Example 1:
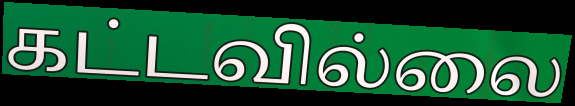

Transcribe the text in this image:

கட்டவில்லை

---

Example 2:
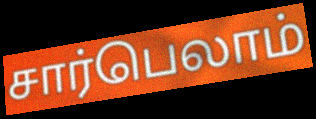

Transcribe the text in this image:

சார்பெலாம்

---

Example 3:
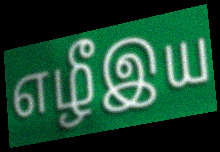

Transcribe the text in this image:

எழீஇய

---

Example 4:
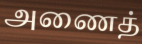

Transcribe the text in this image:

அணைத்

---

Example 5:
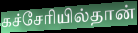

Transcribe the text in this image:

கச்சேரியில்தான்